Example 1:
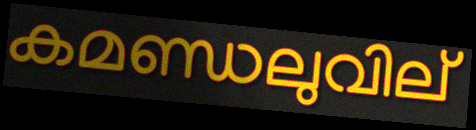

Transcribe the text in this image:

കമണ്ഡലുവില്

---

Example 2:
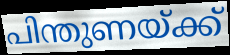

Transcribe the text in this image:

പിന്തുണയ്ക്ക്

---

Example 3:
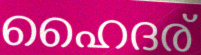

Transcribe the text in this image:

ഹൈദര്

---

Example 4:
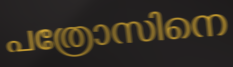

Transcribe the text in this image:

പത്രോസിനെ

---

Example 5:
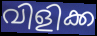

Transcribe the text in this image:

വിളിക്ക